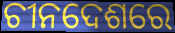
ଚୀନଦେଶରେ